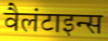
वैलंटाइन्स